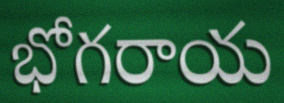
భోగరాయ